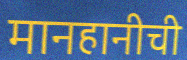
मानहानीची